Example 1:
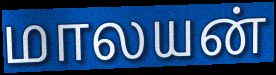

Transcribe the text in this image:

மாலயன்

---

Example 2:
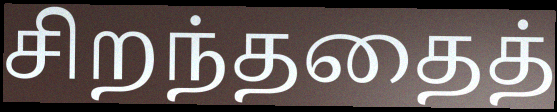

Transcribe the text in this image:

சிறந்ததைத்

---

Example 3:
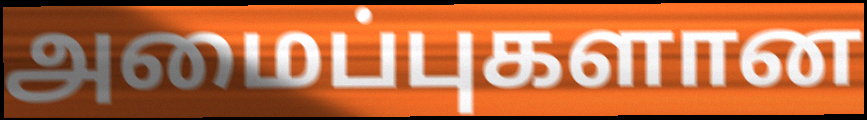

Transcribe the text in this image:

அமைப்புகளான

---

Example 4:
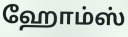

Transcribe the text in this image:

ஹோம்ஸ்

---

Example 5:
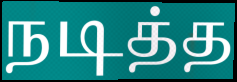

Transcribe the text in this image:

நடித்த